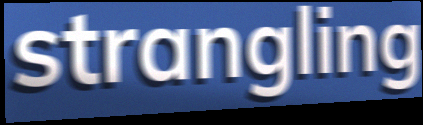
strangling